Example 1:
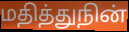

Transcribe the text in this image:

மதித்துநின்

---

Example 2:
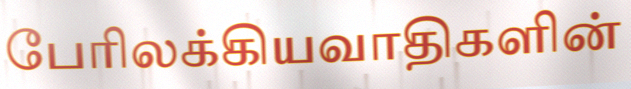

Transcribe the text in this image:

பேரிலக்கியவாதிகளின்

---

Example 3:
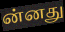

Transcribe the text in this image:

ன்னது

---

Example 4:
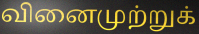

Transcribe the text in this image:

வினைமுற்றுக்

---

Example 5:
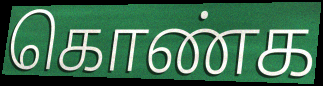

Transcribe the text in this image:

கொண்க